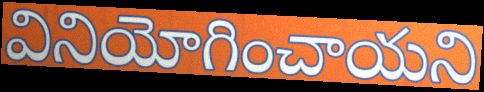
వినియోగించాయని